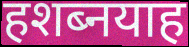
हशब्नयाह